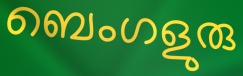
ബെംഗളുരു